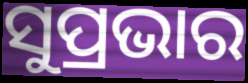
ସୁପ୍ରଭାର